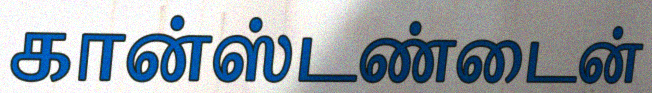
கான்ஸ்டண்டைன்